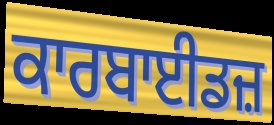
ਕਾਰਬਾਈਡਜ਼